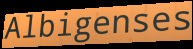
Albigenses